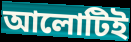
আলোটিই